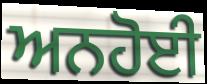
ਅਨਹੋਈ